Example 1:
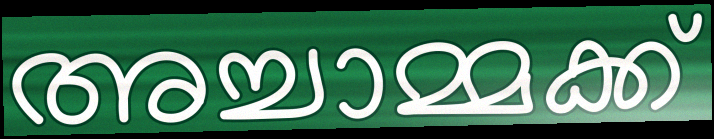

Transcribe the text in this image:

അച്ചാമ്മക്ക്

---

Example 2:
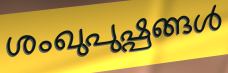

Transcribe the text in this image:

ശംഖുപുഷ്പങ്ങൾ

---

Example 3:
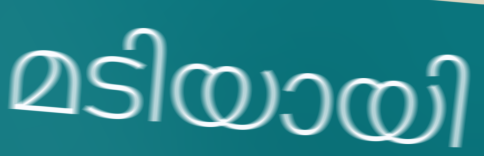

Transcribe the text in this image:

മടിയായി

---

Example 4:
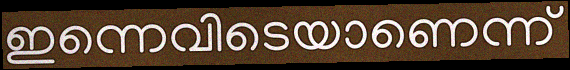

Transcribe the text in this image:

ഇന്നെവിടെയാണെന്ന്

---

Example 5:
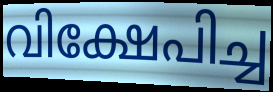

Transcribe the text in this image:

വിക്ഷേപിച്ച